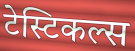
टेस्टिकल्स